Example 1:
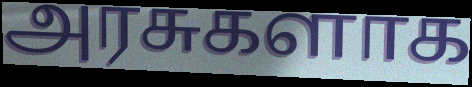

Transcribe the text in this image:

அரசுகளாக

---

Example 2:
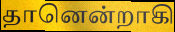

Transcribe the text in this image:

தானென்றாகி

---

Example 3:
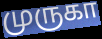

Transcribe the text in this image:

முருகா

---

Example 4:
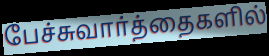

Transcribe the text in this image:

பேச்சுவார்த்தைகளில்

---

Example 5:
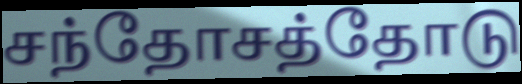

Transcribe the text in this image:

சந்தோசத்தோடு